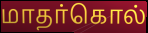
மாதர்கொல்